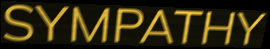
SYMPATHY